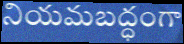
నియమబద్ధంగా